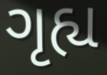
ગૃહ્ય